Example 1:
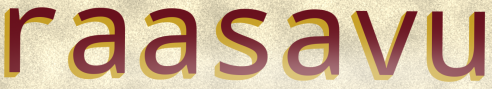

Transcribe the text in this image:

raasavu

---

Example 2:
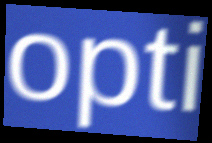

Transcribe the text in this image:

opti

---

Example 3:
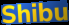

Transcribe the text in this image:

Shibu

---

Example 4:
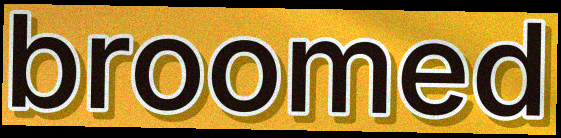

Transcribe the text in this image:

broomed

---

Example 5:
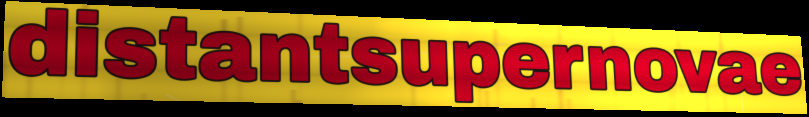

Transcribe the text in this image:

distantsupernovae